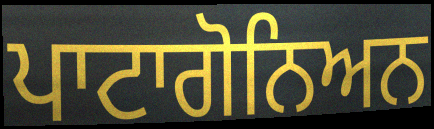
ਪਾਟਾਗੋਨਿਅਨ